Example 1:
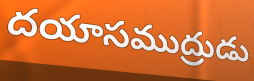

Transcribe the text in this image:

దయాసముద్రుడు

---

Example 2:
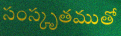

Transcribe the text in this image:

సంస్కృతముతో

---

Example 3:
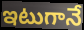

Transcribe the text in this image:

ఇటుగానే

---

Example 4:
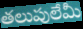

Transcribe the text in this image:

తలుపులేమీ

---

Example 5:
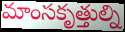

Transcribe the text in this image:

మాంసకృత్తుల్ని